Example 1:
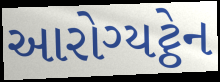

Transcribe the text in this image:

આરોગ્યટ્ઠેન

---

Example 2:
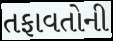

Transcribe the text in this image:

તફાવતોની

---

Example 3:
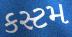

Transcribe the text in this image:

કસ્ટમ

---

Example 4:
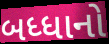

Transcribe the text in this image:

બધ્ધાનો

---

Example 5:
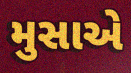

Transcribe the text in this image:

મુસાએ